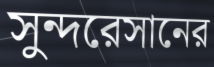
সুন্দরেসানের